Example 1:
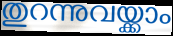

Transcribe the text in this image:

തുറന്നുവയ്ക്കാം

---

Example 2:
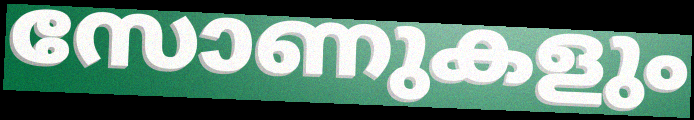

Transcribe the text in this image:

സോണുകളും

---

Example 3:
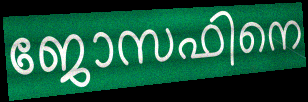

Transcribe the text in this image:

ജോസഫിനെ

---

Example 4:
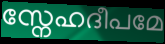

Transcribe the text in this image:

സ്നേഹദീപമേ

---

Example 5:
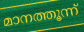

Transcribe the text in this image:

മാനത്തൂന്ന്